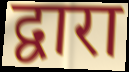
द्वारा